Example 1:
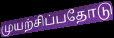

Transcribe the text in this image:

முயற்சிப்பதோடு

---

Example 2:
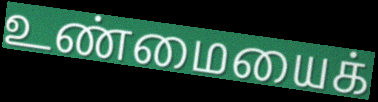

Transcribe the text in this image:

உண்மையைக்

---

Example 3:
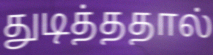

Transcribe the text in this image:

துடித்ததால்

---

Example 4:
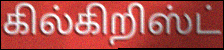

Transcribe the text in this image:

கில்கிறிஸ்ட்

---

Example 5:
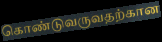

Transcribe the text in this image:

கொண்டுவருவதற்கான